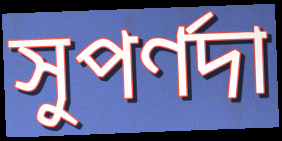
সুপর্ণদা